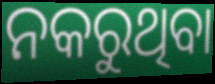
ନକରୁଥିବା